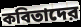
কবিতাদের